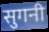
सुगनी